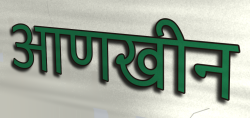
आणखीन